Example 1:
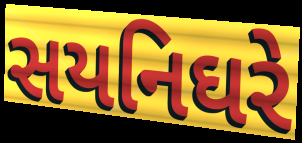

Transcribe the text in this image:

સયનિઘરે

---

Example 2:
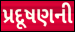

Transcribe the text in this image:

પ્રદૂષણની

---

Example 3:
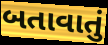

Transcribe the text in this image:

બતાવાતું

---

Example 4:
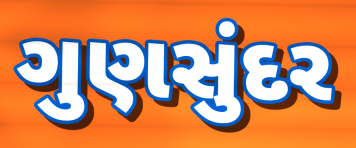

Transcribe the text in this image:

ગુણસુંદર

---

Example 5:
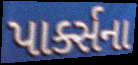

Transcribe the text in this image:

પાર્ક્સના